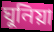
ঘুনিয়া